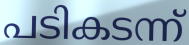
പടികടന്ന്